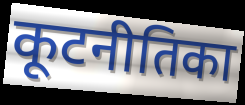
कूटनीतिका